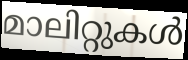
മാലിറ്റുകൾ